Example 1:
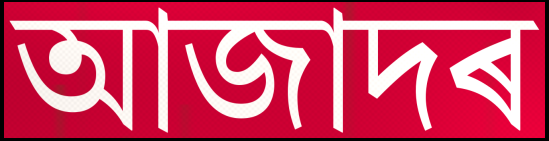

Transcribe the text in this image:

আজাদৰ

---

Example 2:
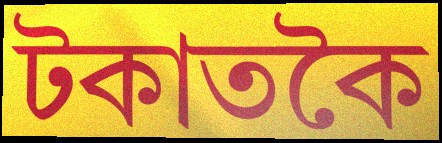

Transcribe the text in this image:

টকাতকৈ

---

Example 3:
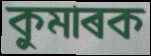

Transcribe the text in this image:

কুমাৰক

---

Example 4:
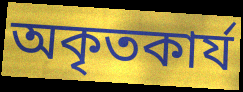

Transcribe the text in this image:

অকৃতকাৰ্য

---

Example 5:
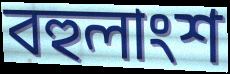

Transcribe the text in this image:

বহুলাংশ